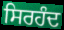
ਸਿਰਹੰਦ